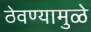
ठेवण्यामुळे